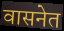
वासनेत